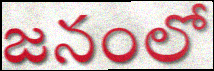
జనంలో